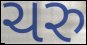
ચરુ